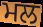
ਮਲ